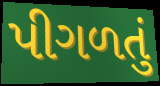
પીગળતું